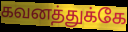
கவனத்துக்கே